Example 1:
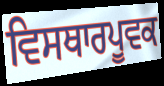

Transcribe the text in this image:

ਵਿਸਥਾਰਪੂਵਕ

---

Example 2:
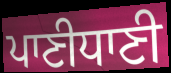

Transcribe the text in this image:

ਪਾਣੀਧਾਣੀ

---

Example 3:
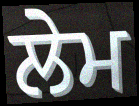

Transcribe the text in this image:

ਲੇਮ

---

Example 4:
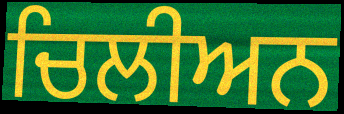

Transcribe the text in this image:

ਚਿਲੀਅਨ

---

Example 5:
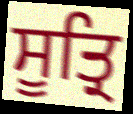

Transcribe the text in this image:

ਸੂਤ੍ਰਿ